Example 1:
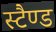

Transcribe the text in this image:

स्टैण्ड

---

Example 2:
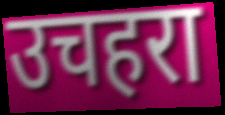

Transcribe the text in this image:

उचहरा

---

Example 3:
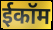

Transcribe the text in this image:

ईकॉम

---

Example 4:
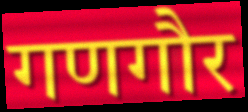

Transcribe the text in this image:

गणगौर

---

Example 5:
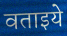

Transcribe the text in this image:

वताइये